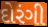
દોરંગી